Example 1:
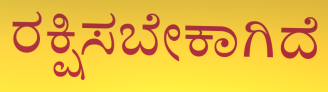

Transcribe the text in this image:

ರಕ್ಷಿಸಬೇಕಾಗಿದೆ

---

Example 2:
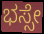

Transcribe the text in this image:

ಭಸ್ಸೇ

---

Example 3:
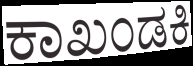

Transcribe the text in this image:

ಕಾಖಂಡಕಿ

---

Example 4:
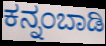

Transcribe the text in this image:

ಕನ್ನಂಬಾಡಿ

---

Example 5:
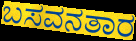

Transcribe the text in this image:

ಬಸವನತಾರ